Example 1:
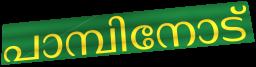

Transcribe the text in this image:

പാമ്പിനോട്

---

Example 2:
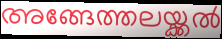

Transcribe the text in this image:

അങ്ങേത്തലയ്ക്കൽ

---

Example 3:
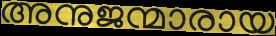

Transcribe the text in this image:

അനുജന്മാരായ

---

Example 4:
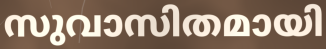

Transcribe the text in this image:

സുവാസിതമായി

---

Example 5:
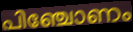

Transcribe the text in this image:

പിഞ്ചോണം